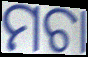
ମଚା